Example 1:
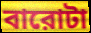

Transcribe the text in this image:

বারোটা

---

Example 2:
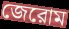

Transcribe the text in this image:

জেরোম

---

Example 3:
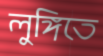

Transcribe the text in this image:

লুঙ্গিতে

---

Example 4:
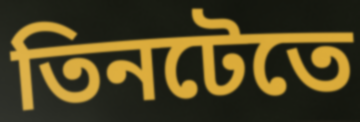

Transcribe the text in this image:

তিনটেতে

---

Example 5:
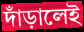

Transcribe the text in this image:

দাঁড়ালেই